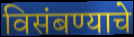
विसंबण्याचे